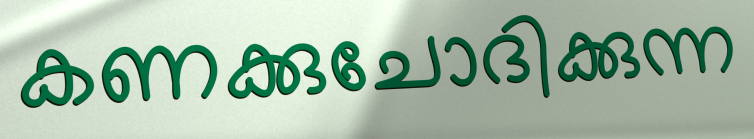
കണക്കുചോദിക്കുന്ന